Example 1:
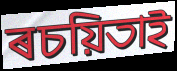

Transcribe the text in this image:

ৰচয়িতাই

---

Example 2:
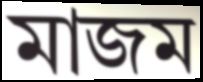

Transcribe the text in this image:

মাজম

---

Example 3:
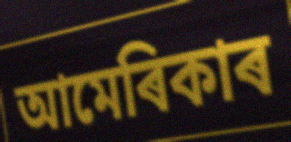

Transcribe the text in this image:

আমেৰিকাৰ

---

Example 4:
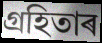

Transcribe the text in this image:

গ্ৰহিতাৰ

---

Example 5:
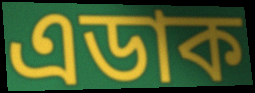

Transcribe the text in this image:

এডাক